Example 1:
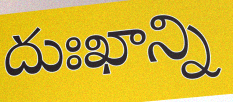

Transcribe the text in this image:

దుఃఖాన్ని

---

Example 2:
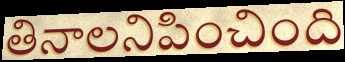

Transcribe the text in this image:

తినాలనిపించింది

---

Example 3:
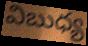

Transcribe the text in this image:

విబుధ్య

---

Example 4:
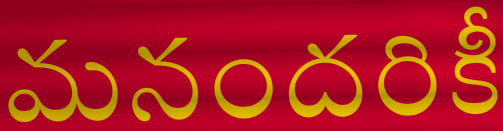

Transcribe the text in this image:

మనందరికీ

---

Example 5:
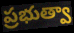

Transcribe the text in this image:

ప్రభుత్వా